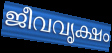
ജീവവൃക്ഷം